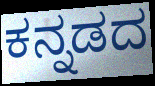
ಕನ್ನಡದ